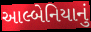
આલ્બેનિયાનું